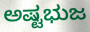
ಅಷ್ಟಭುಜ